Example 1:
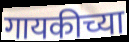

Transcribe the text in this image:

गायकीच्या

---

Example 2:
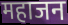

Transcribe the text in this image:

महाजन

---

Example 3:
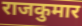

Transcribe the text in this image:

राजकुमार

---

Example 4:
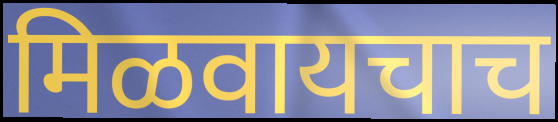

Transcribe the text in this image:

मिळवायचाच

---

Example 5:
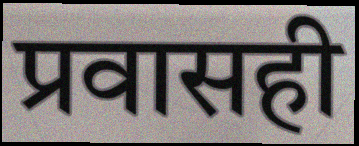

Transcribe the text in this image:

प्रवासही